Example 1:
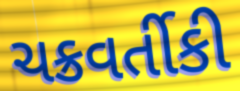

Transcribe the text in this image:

ચક્રવર્તીકી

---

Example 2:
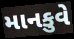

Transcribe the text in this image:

માનકુવે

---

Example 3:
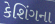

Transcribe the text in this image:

કેશિંગના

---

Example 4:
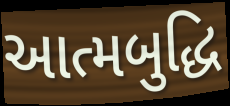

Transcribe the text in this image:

આત્મબુદ્ધિ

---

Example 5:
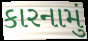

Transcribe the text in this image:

કારનામું